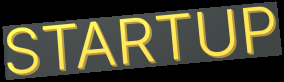
STARTUP